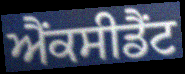
ਐਂਕਸੀਡੈਂਟ